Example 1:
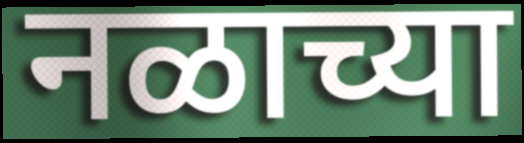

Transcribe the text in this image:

नळाच्या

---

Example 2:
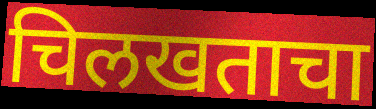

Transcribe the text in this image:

चिलखताचा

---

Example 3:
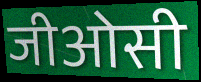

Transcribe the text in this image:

जीओसी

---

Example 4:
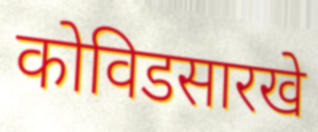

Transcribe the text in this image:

कोविडसारखे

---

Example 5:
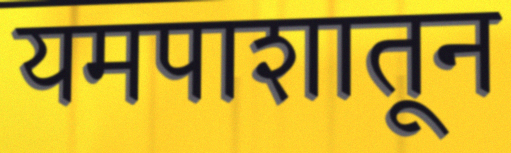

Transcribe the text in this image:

यमपाशातून